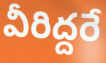
వీరిద్దరే